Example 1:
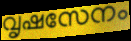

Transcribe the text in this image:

വൃഷസേനം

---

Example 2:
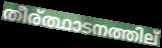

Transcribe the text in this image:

തീര്ത്ഥാടനത്തില്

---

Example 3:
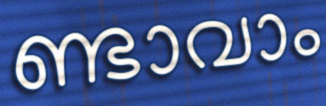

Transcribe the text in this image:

ണ്ടാവാം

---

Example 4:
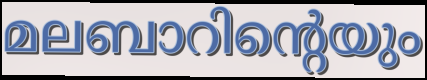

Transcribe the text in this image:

മലബാറിന്റെയും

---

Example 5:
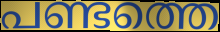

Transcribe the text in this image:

പണ്ടത്തെ